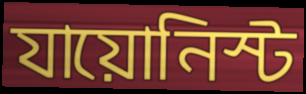
যায়োনিস্ট